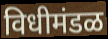
विधीमंडळ